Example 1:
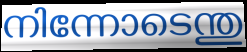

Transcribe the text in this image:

നിന്നോടെന്തു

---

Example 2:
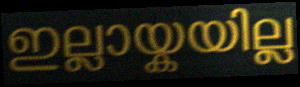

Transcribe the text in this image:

ഇല്ലായ്കയില്ല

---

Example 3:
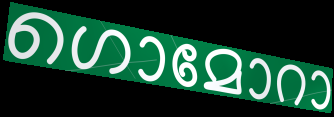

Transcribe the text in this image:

ഗൊമോറാ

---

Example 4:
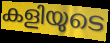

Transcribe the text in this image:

കളിയുടെ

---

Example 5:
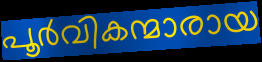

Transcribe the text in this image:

പൂർവികന്മാരായ